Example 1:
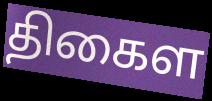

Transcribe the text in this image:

திகைள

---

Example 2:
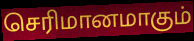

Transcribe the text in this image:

செரிமானமாகும்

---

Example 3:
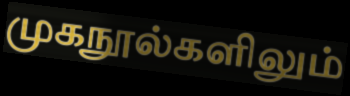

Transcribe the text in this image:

முகநூல்களிலும்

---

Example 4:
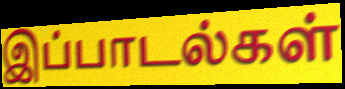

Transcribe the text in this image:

இப்பாடல்கள்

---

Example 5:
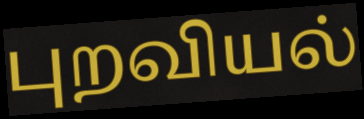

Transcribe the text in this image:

புறவியல்